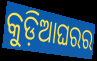
କୁଡ଼ିଆଘରର